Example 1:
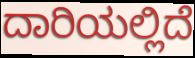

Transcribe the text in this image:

ದಾರಿಯಲ್ಲಿದೆ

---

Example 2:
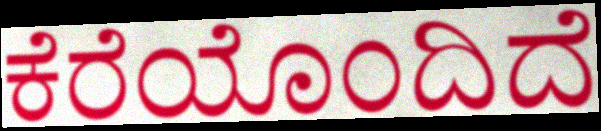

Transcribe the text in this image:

ಕೆರೆಯೊಂದಿದೆ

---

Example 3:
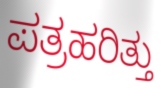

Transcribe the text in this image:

ಪತ್ರಹರಿತ್ತು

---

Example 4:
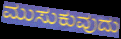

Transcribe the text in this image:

ಮುಸುಕುವುದು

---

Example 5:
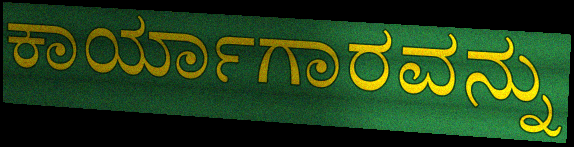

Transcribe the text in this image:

ಕಾರ್ಯಾಗಾರವನ್ನು